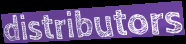
distributors